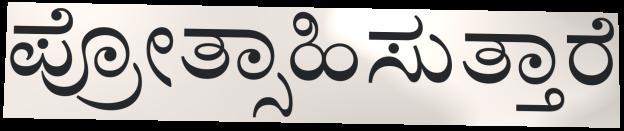
ಪ್ರೋತ್ಸಾಹಿಸುತ್ತಾರೆ